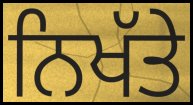
ਨਿਖੱਤੇ